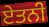
ਏਤਨੀ